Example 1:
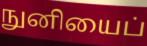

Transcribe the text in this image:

நுனியைப்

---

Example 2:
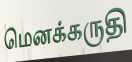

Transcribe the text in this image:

மெனக்கருதி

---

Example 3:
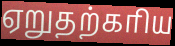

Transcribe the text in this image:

ஏறுதற்கரிய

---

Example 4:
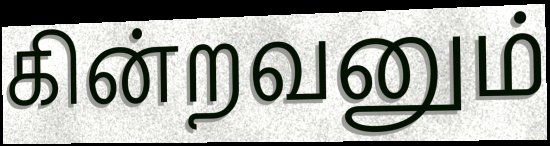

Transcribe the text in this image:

கின்றவனும்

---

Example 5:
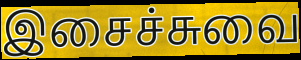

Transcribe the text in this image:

இசைச்சுவை